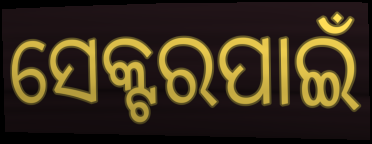
ସେକ୍ଟରପାଇଁ